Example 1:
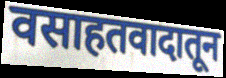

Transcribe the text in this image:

वसाहतवादातून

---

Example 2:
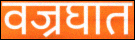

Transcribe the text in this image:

वज्रघात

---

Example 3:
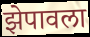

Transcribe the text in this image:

झेपावला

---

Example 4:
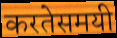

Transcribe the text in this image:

करतेसमयी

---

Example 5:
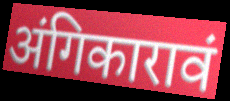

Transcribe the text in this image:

अंगिकारावं